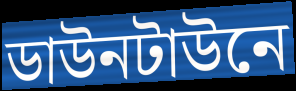
ডাউনটাউনে